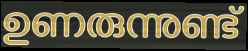
ഉണരുന്നുണ്ട്